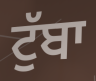
ਟੁੱਬਾ